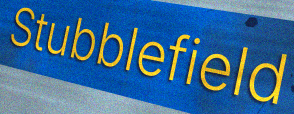
Stubblefield